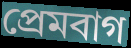
প্রেমবাগ